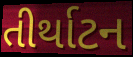
તીર્થાટન